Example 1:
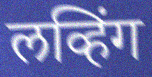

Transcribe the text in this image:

लव्हिंग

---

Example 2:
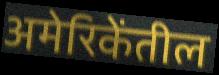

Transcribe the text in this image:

अमेरिकेंतील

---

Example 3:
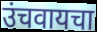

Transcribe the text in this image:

उंचवायचा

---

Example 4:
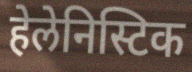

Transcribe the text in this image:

हेलेनिस्टिक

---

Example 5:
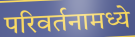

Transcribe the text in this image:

परिवर्तनामध्ये